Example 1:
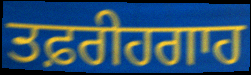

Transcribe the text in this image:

ਤਫ਼ਰੀਹਗਾਹ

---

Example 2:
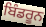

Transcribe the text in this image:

ਬਿੰਡਰੂਨ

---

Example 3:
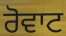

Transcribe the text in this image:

ਰੋਵਾਟ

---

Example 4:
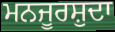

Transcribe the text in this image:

ਮਨਜੂਰਸ਼ੁਦਾ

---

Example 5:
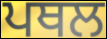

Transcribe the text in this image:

ਪਥਲ